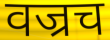
वज्रच